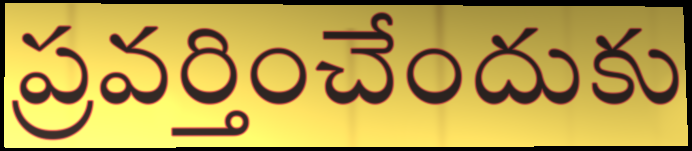
ప్రవర్తించేందుకు